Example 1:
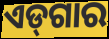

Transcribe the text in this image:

ଏଡ୍‌ଗାର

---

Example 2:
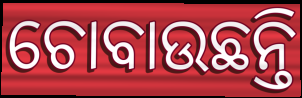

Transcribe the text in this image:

ଚୋବାଉଛନ୍ତି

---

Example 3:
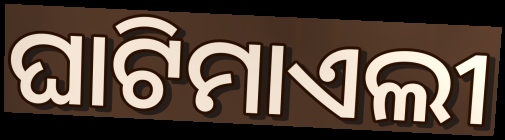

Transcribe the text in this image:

ଘାଟିମାଏଲୀ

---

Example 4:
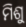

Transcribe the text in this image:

ମିଶୁ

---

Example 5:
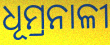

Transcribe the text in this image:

ଧୂମ୍ରନାଳୀ